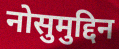
नोसुमुद्दिन